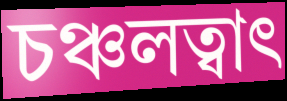
চঞ্চলত্বাৎ